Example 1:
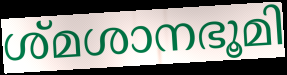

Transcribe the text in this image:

ശ്മശാനഭൂമി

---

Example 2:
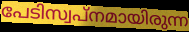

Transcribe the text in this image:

പേടിസ്വപ്നമായിരുന്ന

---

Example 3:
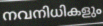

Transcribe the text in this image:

നവനിധികളും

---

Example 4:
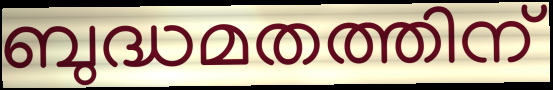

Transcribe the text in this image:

ബുദ്ധമതത്തിന്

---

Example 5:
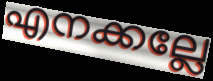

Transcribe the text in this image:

എനക്കല്ലേ